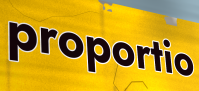
proportio